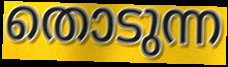
തൊടുന്ന